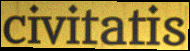
civitatis